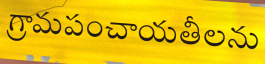
గ్రామపంచాయతీలను